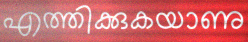
എത്തിക്കുകയാണു